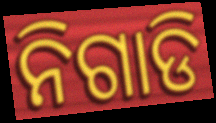
ନିଗାଡି